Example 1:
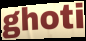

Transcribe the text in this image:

ghoti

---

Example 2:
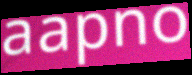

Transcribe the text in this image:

aapno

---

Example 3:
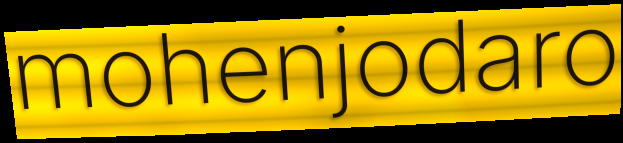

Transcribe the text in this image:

mohenjodaro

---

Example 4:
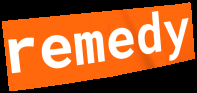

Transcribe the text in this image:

remedy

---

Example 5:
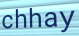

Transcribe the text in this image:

chhay